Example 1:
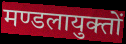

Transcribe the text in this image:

मण्डलायुक्तों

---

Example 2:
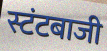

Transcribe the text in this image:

स्टंटबाजी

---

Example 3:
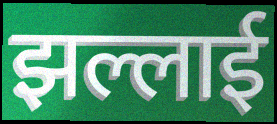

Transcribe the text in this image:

झल्लाई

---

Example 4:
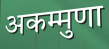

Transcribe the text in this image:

अकम्मुणा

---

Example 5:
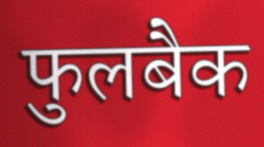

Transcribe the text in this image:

फुलबैक